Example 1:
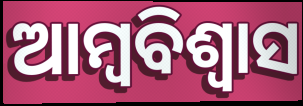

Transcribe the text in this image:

ଆମ୍ବବିଶ୍ଵାସ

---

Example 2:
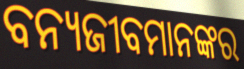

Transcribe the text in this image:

ବନ୍ୟଜୀବମାନଙ୍କର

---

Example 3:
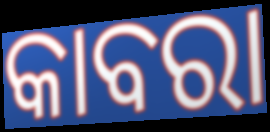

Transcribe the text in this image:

କାବରା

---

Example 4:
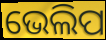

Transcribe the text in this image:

ଭେଲିପ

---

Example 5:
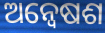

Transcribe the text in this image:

ଅନ୍ୱେଷଶ